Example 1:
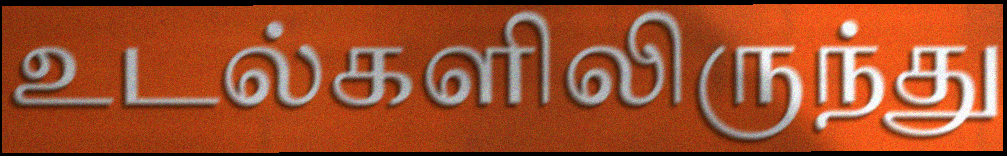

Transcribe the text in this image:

உடல்களிலிருந்து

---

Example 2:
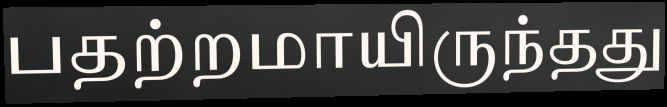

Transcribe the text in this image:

பதற்றமாயிருந்தது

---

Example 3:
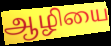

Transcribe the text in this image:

ஆழியை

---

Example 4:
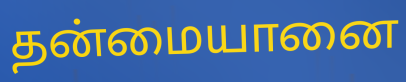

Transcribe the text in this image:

தன்மையானை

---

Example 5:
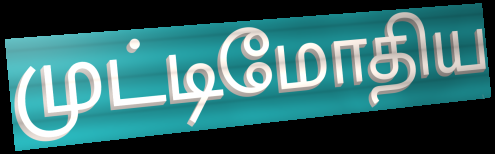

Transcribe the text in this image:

முட்டிமோதிய